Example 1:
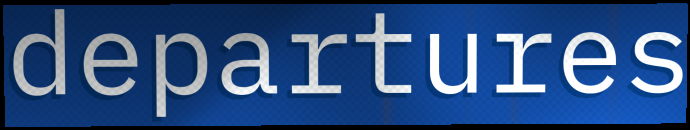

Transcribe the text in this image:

departures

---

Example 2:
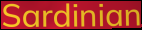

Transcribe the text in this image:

Sardinian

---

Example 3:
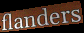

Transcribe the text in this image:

flanders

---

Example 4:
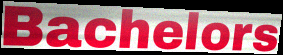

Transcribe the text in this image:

Bachelors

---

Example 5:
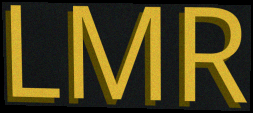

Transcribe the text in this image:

LMR